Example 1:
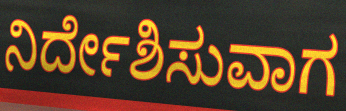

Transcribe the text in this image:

ನಿರ್ದೇಶಿಸುವಾಗ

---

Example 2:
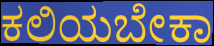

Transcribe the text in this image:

ಕಲಿಯಬೇಕಾ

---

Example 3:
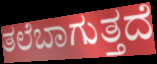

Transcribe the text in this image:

ತಲೆಬಾಗುತ್ತದೆ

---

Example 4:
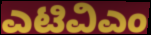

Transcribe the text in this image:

ಎಟಿವಿಎಂ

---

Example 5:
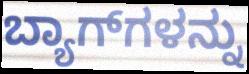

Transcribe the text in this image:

ಬ್ಯಾಗ್‌ಗಳನ್ನು